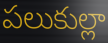
పలుకుల్లా